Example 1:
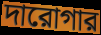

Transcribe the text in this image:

দারোগার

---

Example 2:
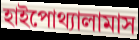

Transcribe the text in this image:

হাইপোথ্যালামাস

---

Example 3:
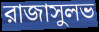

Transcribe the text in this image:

রাজাসুলভ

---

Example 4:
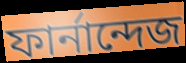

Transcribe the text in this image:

ফার্নান্দেজ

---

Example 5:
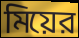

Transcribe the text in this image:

মিয়ের